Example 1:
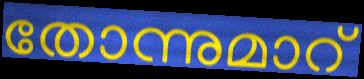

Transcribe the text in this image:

തോന്നുമാറ്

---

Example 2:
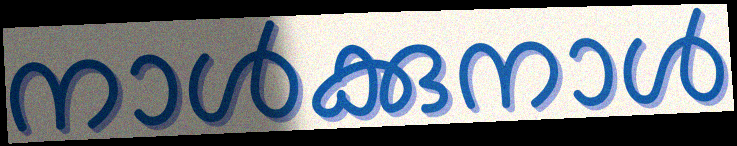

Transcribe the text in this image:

നാൾക്കുനാൾ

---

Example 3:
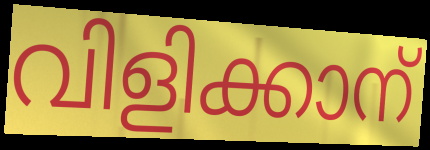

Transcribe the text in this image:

വിളിക്കാന്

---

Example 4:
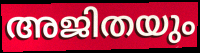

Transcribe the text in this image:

അജിതയും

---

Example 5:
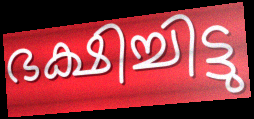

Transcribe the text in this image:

ഭക്ഷിച്ചിട്ടു